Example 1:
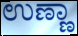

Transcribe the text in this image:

ಉಣ್ಣಾ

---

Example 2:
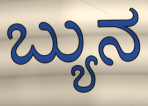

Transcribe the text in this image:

ಬ್ಯುನ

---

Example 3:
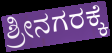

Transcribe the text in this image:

ಶ್ರೀನಗರಕ್ಕೆ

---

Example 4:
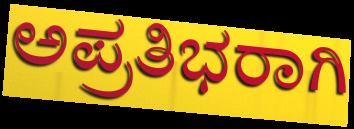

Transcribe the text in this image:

ಅಪ್ರತಿಭರಾಗಿ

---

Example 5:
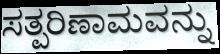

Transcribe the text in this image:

ಸತ್ಪರಿಣಾಮವನ್ನು